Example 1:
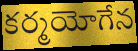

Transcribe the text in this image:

కర్మయోగేన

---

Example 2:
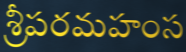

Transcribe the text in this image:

శ్రీపరమహంస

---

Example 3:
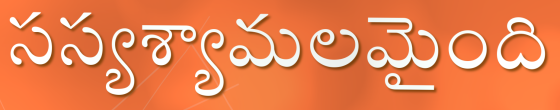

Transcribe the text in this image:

సస్యశ్యామలమైంది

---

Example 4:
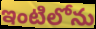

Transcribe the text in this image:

ఇంటిలోను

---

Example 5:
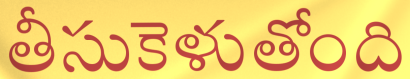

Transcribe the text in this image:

తీసుకెళుతోంది